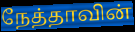
நேத்தாவின்